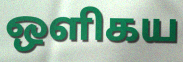
ஒளிகய